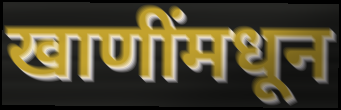
खाणींमधून